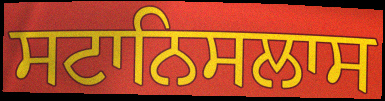
ਸਟਾਨਿਸਲਾਸ